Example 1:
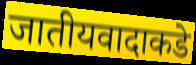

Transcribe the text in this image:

जातीयवादाकडे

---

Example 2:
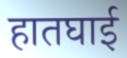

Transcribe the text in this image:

हातघाई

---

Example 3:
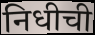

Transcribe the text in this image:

निधीची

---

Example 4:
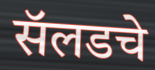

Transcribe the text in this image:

सॅलडचे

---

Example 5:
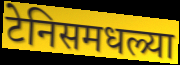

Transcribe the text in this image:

टेनिसमधल्या